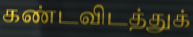
கண்டவிடத்துக்